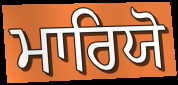
ਮਾਰਿਯੋ